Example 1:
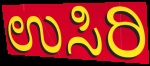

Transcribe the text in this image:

ಉಸಿರಿ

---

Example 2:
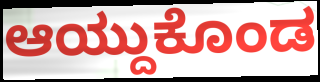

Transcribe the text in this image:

ಆಯ್ದುಕೊಂಡ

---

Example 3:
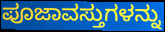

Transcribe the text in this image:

ಪೂಜಾವಸ್ತುಗಳನ್ನು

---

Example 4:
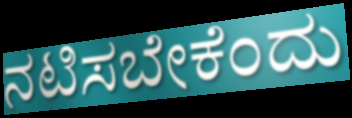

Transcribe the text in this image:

ನಟಿಸಬೇಕೆಂದು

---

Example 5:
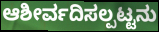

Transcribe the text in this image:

ಆಶೀರ್ವದಿಸಲ್ಪಟ್ಟನು